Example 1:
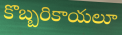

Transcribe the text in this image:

కొబ్బరికాయలూ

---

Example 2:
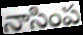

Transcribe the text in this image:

నాసింప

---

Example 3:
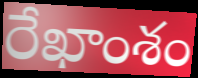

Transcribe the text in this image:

రేఖాంశం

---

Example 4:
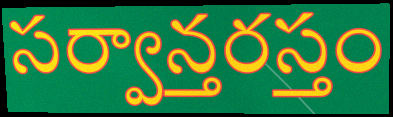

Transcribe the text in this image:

సర్వాన్తరస్తం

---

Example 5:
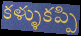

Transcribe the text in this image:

కళ్ళుకప్పి